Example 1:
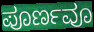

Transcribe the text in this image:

ಪೂರ್ಣವೂ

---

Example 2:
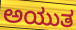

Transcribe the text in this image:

ಅಯುತ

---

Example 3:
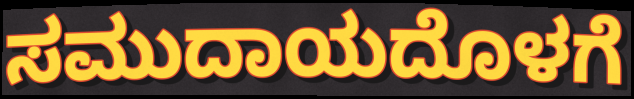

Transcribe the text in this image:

ಸಮುದಾಯದೊಳಗೆ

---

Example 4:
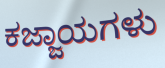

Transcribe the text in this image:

ಕಜ್ಜಾಯಗಳು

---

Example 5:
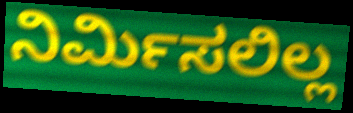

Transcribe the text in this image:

ನಿರ್ಮಿಸಲಿಲ್ಲ